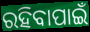
ରହିବାପାଇଁ